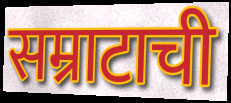
सम्राटाची